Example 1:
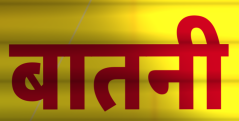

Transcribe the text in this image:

बातनी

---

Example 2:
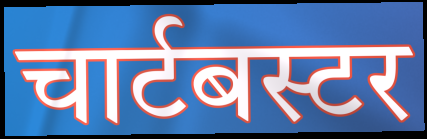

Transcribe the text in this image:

चार्टबस्टर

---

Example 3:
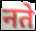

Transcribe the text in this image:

नते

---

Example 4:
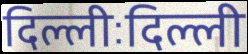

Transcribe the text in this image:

दिल्लीःदिल्ली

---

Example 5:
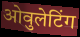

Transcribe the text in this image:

ओवुलेटिंग